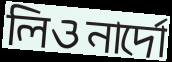
লিওনার্দো